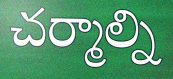
చర్మాల్ని